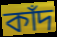
কাঁদ